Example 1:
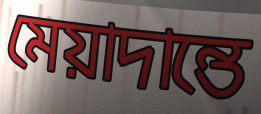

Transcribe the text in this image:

মেয়াদান্তে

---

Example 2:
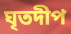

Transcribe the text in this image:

ঘৃতদীপ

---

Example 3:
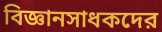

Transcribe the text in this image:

বিজ্ঞানসাধকদের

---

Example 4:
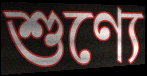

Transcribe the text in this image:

শুণ্যে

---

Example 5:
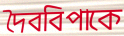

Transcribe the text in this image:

দৈববিপাকে